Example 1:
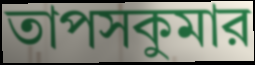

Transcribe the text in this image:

তাপসকুমার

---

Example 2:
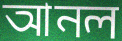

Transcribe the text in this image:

আনল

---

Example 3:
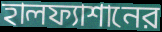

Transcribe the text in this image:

হালফ্যাশানের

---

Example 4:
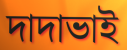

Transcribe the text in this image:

দাদাভাই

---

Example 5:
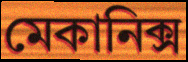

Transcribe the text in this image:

মেকানিক্স